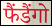
फैंडैंगो